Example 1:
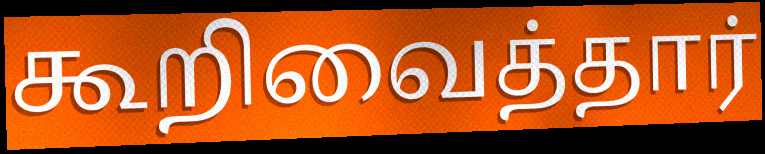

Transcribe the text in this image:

கூறிவைத்தார்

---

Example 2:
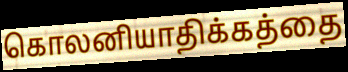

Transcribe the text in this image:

கொலனியாதிக்கத்தை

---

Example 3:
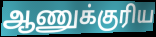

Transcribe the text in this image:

ஆணுக்குரிய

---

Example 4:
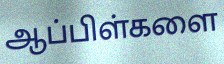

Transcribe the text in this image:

ஆப்பிள்களை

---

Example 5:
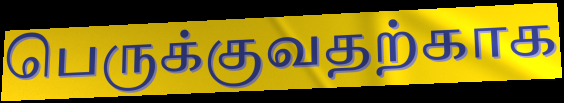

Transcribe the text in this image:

பெருக்குவதற்காக